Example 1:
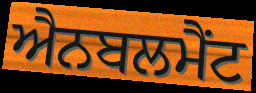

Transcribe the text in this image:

ਐਨਬਲਮੈਂਟ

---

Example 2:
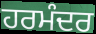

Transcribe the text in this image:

ਹਰਮੰਦਰ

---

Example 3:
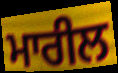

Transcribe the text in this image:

ਮਾਰੀਲ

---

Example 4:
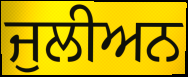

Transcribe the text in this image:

ਜੁਲੀਅਨ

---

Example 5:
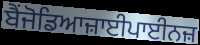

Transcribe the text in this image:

ਬੈਂਜੋਡਿਆਜ਼ਾਈਪਾਈਨਜ਼